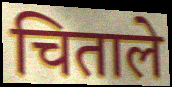
चिताले